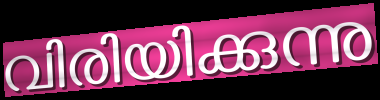
വിരിയിക്കുന്നു